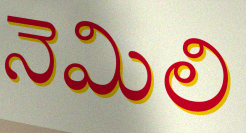
నెమిలి